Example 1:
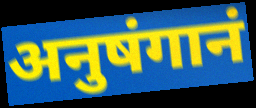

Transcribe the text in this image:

अनुषंगानं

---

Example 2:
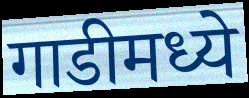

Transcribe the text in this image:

गाडीमध्ये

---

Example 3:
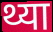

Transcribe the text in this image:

थ्या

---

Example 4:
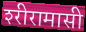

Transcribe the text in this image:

श्रीरामासी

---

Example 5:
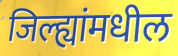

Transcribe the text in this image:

जिल्ह्यांमधील